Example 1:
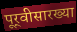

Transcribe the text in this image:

पूर्वीसारख्या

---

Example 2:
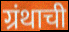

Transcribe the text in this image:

ग्रंथाची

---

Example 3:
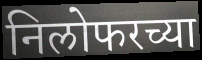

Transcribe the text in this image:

निलोफरच्या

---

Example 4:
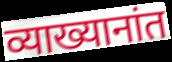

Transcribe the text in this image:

व्याख्यानांत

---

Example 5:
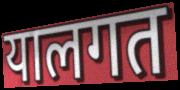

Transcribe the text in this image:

यालगत